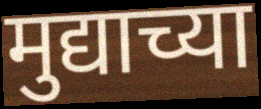
मुद्याच्या